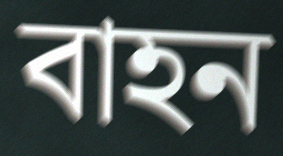
বাহন